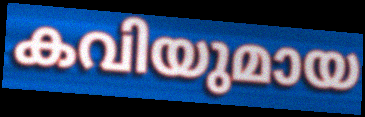
കവിയുമായ